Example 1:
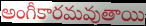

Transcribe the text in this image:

అంగీకారమవుతాయి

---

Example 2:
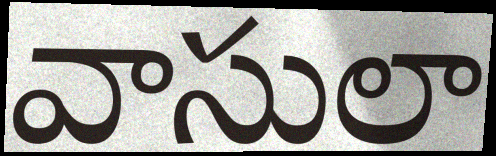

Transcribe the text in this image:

వాసులా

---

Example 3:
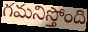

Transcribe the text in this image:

గమనిస్తోంది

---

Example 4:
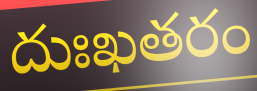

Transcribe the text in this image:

దుఃఖతరం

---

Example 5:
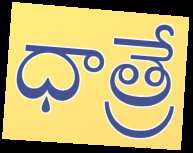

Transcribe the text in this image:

ధాత్రే